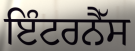
ਇੰਟਰਨੈੱਸ